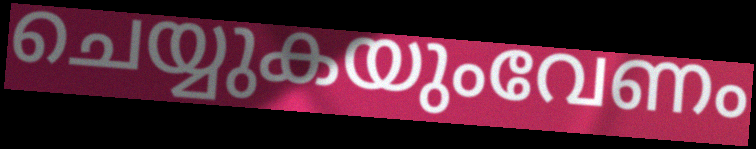
ചെയ്യുകയുംവേണം